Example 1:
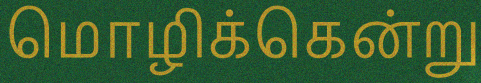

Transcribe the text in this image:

மொழிக்கென்று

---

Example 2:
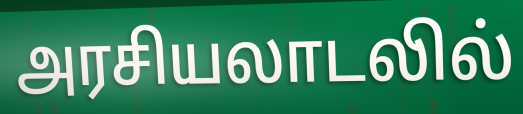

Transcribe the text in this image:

அரசியலாடலில்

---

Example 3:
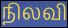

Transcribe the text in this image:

நிலவி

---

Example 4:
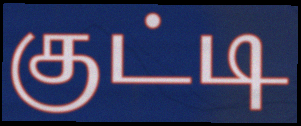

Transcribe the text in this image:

குட்டி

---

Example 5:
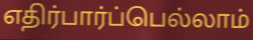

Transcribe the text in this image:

எதிர்பார்ப்பெல்லாம்